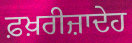
ਫ਼ਖ਼ਰੀਜ਼ਾਦੇਹ